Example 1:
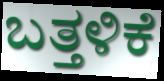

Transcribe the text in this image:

ಬತ್ತಳಿಕೆ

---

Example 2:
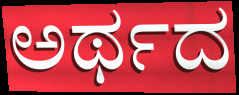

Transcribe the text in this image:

ಅರ್ಥದ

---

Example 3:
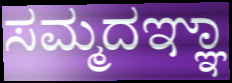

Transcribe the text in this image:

ಸಮ್ಮದಞ್ಞಾ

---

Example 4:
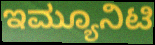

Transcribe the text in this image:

ಇಮ್ಯೂನಿಟಿ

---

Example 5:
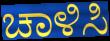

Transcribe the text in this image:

ಚಾಳಿಸಿ